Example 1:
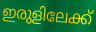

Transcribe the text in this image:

ഇരുളിലേക്ക്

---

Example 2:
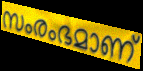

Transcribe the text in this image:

സംരംഭമാണ്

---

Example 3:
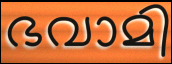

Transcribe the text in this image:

ഭവാമി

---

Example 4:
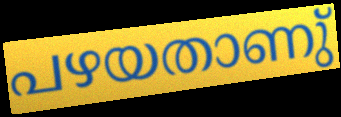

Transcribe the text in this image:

പഴയതാണു്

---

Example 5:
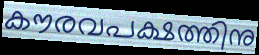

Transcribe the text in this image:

കൗരവപക്ഷത്തിനു